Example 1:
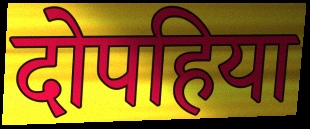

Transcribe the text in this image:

दोपहिया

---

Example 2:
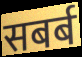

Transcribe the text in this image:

सबर्ब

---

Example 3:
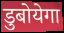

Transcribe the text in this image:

डुबोयेगा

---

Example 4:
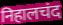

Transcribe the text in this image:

निहालचंद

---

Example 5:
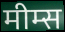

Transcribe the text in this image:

मीम्‍स